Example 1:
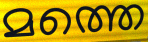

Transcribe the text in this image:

മത്തെ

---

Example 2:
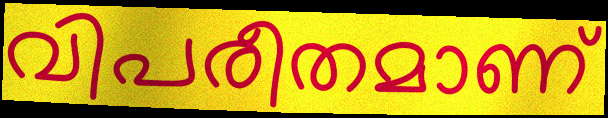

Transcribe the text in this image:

വിപരീതമാണ്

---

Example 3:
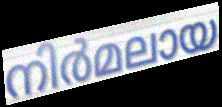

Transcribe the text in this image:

നിർമലായ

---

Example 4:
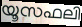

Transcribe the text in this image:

യൂസഫലി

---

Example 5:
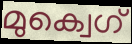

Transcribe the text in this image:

മുക്വെഗ്